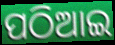
ପଠିଆଇ